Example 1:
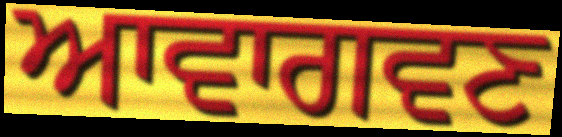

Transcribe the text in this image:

ਆਵਾਗਵਣ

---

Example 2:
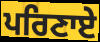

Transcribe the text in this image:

ਪਰਿਣਾਏ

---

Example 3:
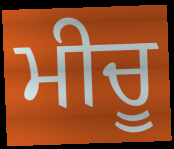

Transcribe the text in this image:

ਮੀਚੂ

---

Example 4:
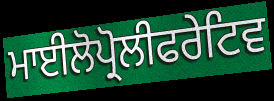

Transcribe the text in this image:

ਮਾਈਲੋਪ੍ਰੋਲੀਫਰੇਟਿਵ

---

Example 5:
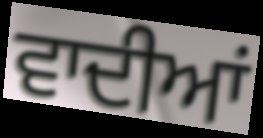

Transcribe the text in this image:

ਵਾਦੀਆਂ